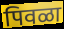
पिवळा